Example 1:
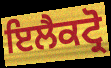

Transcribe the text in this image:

ਇਲੈਕਟ੍ਰੋ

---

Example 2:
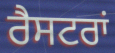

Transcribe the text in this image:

ਰੈਸਟਰਾਂ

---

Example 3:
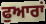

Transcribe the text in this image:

ਫੁਆਰਾਂ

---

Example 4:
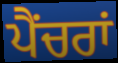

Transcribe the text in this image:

ਪੈਂਚਰਾਂ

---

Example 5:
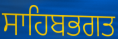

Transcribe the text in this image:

ਸਾਹਿਬਭਗਤ